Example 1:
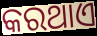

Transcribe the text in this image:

କରଥାଏ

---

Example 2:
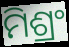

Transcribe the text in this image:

ମିଶ୍ରଂ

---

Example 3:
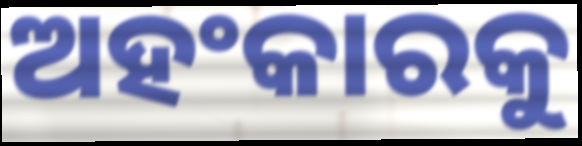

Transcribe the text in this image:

ଅହଂକାରକୁ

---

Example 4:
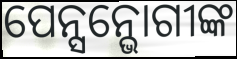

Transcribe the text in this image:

ପେନ୍ସନ୍ଭୋଗୀଙ୍କ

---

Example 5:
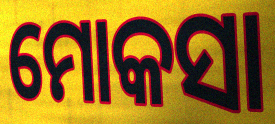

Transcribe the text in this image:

ମୋକସା